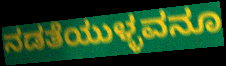
ನಡತೆಯುಳ್ಳವನೂ